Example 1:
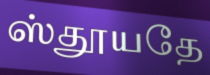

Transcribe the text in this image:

ஸ்தூயதே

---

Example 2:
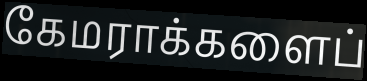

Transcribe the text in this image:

கேமராக்களைப்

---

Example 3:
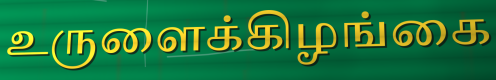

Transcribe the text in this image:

உருளைக்கிழங்கை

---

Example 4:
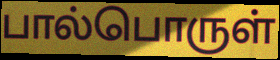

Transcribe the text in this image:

பால்பொருள்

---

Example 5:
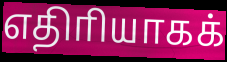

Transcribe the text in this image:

எதிரியாகக்